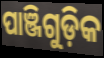
ପାଞ୍ଜିଗୁଡ଼ିକ